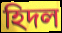
হিদল